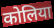
कोलिया